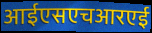
आईएसएचआरएई